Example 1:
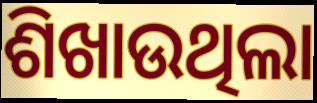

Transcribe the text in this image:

ଶିଖାଉଥିଲା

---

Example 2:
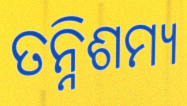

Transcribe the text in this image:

ତନ୍ନିଶମ୍ୟ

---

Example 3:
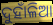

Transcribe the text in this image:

ଦୁହାଁଳିଆ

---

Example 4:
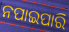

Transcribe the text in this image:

ନପାଇପାରି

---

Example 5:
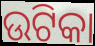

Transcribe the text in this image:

ଉଟିକା